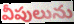
వీపులును